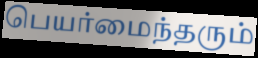
பெயர்மைந்தரும்